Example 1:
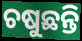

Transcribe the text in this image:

ଚଷୁଛନ୍ତି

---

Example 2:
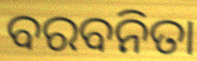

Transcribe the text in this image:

ବରବନିତା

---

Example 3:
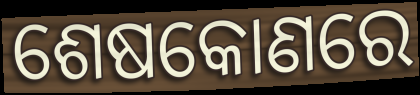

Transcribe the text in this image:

ଶେଷକୋଣରେ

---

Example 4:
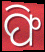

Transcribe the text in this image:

ଫି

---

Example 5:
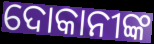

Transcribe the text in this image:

ଦୋକାନୀଙ୍କ